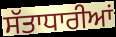
ਸੱਤਾਧਾਰੀਆਂ